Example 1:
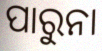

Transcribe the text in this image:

ପାରୁନା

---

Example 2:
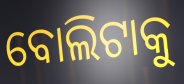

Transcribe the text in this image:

ବୋଲିଟାକୁ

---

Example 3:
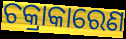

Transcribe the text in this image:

ଚକ୍ରାକାରେଣ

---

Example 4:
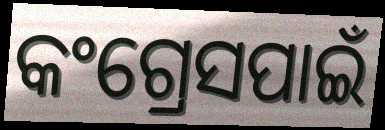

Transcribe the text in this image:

କଂଗ୍ରେସପାଇଁ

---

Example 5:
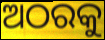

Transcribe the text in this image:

ଅଠରକୁ